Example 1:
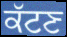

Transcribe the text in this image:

ਕੱਟਣ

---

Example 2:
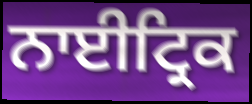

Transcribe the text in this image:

ਨਾਈਟ੍ਰਿਕ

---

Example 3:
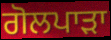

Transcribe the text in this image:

ਗੋਲਪਾੜਾ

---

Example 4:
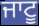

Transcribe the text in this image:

ਜਾਟੂ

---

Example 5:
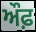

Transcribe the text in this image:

ਔਫ਼